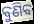
ବୁଣିବ